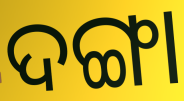
ଦଙ୍ଗା